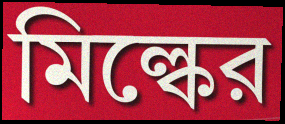
মিল্কের